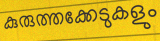
കുരുത്തക്കേടുകളും